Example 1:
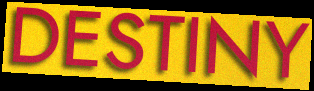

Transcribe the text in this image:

DESTINY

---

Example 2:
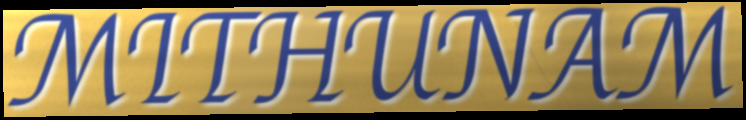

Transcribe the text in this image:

MITHUNAM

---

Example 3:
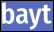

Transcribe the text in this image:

bayt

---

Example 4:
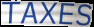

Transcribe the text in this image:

TAXES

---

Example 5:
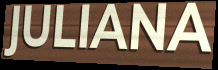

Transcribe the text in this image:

JULIANA